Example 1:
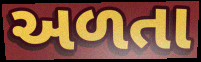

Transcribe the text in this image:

અળતા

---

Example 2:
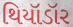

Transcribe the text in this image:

થિયૉડૉર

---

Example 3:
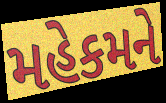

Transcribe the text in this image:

મહેકમને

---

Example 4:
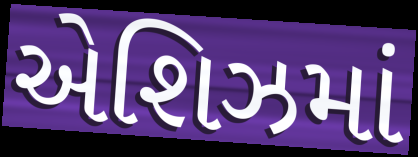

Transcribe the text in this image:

એશિઝમાં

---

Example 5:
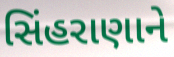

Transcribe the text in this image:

સિંહરાણાને